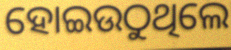
ହୋଇଉଠୁଥିଲେ